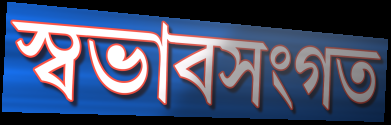
স্বভাবসংগত